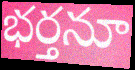
భర్తనూ